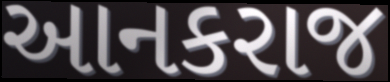
આનકરાજ